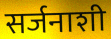
सर्जनाशी